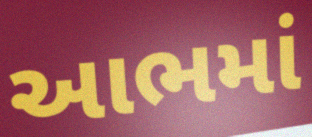
આભમાં